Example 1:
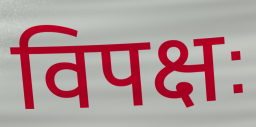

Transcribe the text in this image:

विपक्षः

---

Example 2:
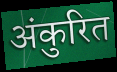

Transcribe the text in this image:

अंकुरित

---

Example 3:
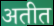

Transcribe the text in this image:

अतीत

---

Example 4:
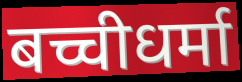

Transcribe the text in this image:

बच्चीधर्मा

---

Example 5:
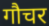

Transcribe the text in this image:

गौचर